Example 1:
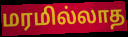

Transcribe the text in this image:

மரமில்லாத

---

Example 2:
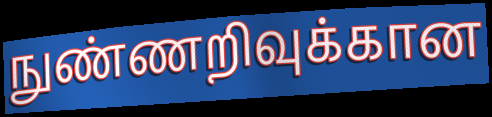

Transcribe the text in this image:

நுண்ணறிவுக்கான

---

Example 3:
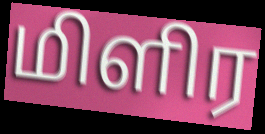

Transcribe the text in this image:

மிளிர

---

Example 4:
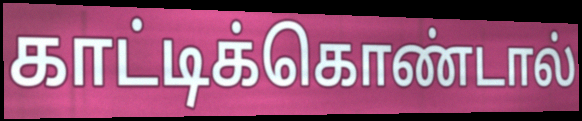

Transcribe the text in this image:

காட்டிக்கொண்டால்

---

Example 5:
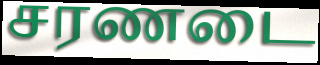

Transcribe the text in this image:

சரணடை